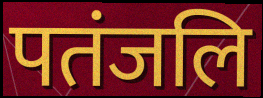
पतंजलि